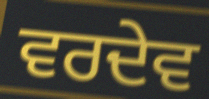
ਵਰਦੇਵ